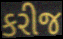
કરીજ